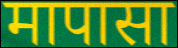
मापासा